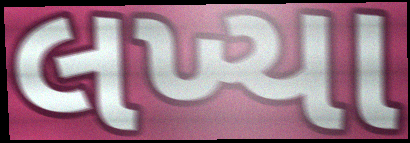
લખ્યા